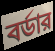
বর্ডার